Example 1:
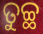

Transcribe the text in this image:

ତୁଚ୍ଛ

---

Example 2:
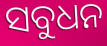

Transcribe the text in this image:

ସବୁଧନ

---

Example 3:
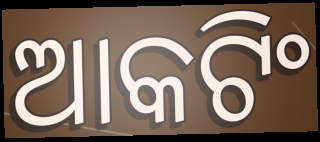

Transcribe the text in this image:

ଆକଟିଂ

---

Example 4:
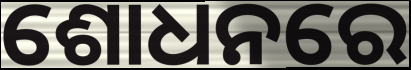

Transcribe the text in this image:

ଶୋଧନରେ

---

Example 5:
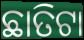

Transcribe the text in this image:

ଛାତିଟା